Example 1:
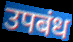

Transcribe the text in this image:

उपबंध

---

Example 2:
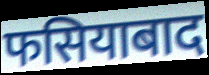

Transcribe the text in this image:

फसियाबाद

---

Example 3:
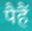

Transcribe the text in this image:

पैहैं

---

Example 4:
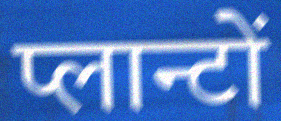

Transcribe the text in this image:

प्लान्टों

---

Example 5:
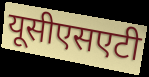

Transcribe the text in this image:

यूसीएसएटी